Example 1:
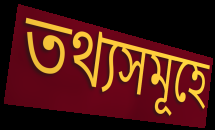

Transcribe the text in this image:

তথ্যসমূহে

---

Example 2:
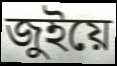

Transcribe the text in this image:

জুইয়ে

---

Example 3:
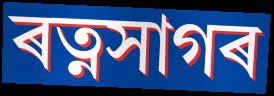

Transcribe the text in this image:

ৰত্নসাগৰ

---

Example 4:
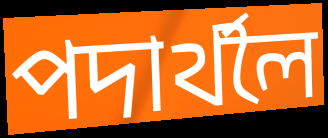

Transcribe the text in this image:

পদাৰ্থলৈ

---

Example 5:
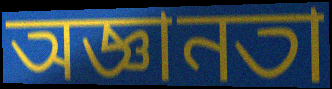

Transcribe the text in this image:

অজ্ঞানতা